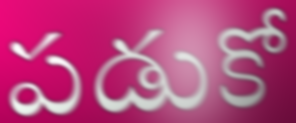
పడుకో